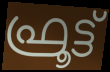
ഫ്രൂട്ട്